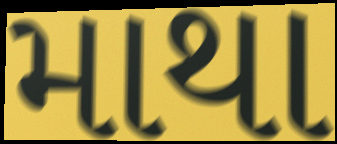
માથા